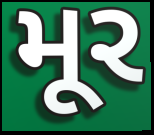
મૂર